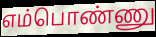
எம்பொண்ணு